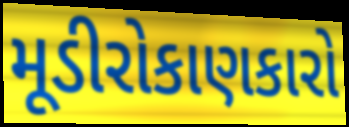
મૂડીરોકાણકારો